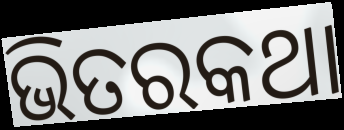
ଭିତରକଥା